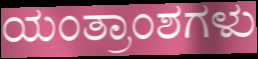
ಯಂತ್ರಾಂಶಗಳು